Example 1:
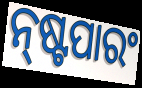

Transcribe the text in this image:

ନ୍‌ଷ୍ଟପାରଂ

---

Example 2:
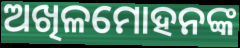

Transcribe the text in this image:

ଅଖିଳମୋହନଙ୍କ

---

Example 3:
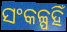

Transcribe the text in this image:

ସଂକଳ୍ପହିଁ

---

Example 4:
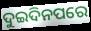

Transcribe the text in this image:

ଦୁଇଦିନପରେ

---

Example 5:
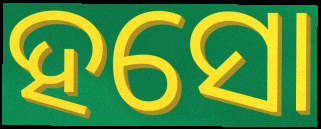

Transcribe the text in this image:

ହସୋ